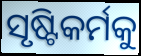
ସୃଷ୍ଟିକର୍ମକୁ